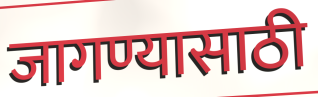
जागण्यासाठी